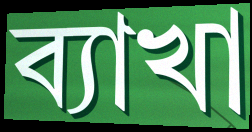
ব্যাখা